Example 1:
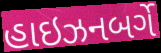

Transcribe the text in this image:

હાઇઝનબર્ગે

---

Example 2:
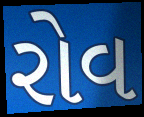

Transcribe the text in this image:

રોવ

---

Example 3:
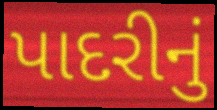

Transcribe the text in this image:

પાદરીનું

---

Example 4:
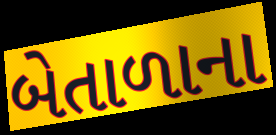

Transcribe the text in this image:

બેતાળાના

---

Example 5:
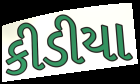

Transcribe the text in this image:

કીડીયા